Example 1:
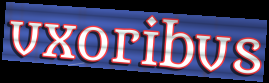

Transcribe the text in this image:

uxoribus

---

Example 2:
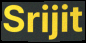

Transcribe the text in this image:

Srijit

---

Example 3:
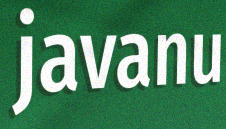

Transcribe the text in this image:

javanu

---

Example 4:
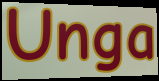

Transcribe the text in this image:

Unga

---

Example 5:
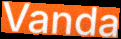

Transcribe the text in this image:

Vanda